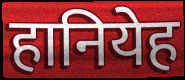
हानियेह